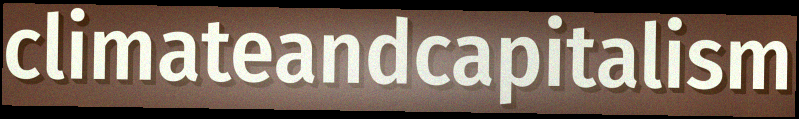
climateandcapitalism